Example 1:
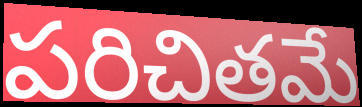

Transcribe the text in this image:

పరిచితమే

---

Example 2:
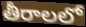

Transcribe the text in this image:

తీరాలలో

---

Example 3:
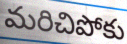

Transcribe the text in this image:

మరిచిపోకు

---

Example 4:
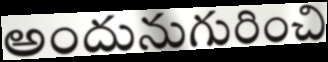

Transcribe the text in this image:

అందునుగురించి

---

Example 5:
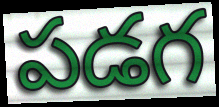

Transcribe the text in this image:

పడగ